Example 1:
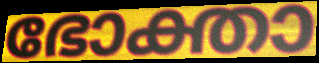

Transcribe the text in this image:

ഭോക്താ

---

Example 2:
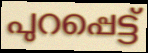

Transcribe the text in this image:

പുറപ്പെട്ട്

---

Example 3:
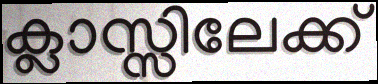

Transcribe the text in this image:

ക്ലാസ്സിലേക്ക്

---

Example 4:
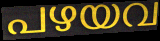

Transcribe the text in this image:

പഴയവ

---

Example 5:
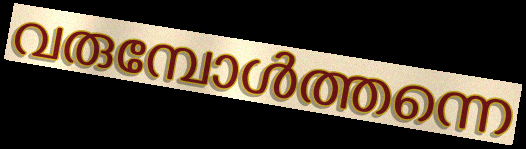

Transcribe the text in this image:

വരുമ്പോൾത്തന്നെ